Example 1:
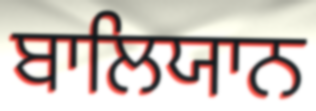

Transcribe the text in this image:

ਬਾਲਿਯਾਨ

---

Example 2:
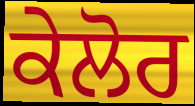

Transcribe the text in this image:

ਕੇਲੋਰ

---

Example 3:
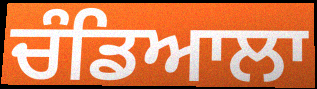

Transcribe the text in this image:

ਚੰਡਿਆਲਾ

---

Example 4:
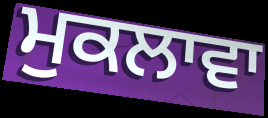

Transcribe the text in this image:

ਮੁਕਲਾਵਾ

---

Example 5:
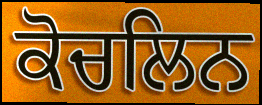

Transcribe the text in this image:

ਕੋਚਲਿਨ